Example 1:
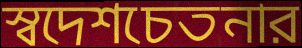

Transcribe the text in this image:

স্বদেশচেতনার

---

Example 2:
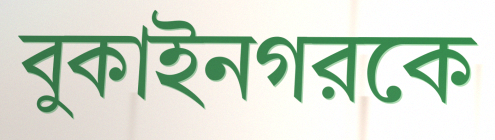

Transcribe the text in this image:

বুকাইনগরকে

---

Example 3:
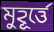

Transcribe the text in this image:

মুহূর্ত্তে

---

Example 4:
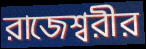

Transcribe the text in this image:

রাজেশ্বরীর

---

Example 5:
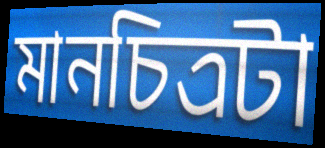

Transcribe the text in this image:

মানচিত্রটা